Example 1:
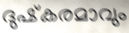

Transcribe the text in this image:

ദുഷ്‌കരമാവും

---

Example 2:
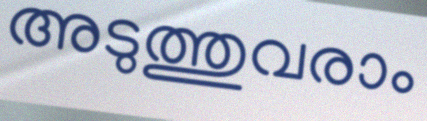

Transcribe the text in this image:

അടുത്തുവരാം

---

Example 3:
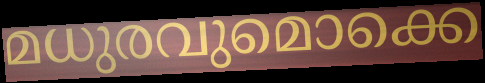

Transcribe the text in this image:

മധുരവുമൊക്കെ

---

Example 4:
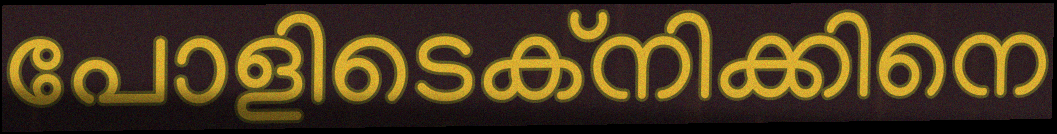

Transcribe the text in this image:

പോളിടെക്നിക്കിനെ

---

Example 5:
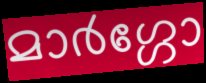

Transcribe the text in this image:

മാർഗ്ഗോ